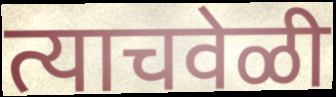
त्याचवेळी